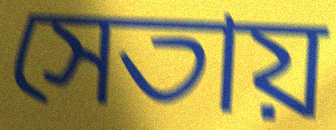
সেতায়